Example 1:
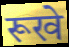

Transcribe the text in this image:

रूखे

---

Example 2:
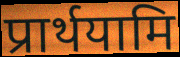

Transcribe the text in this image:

प्रार्थयामि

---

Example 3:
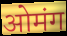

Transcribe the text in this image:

ओमंग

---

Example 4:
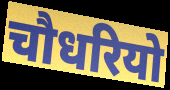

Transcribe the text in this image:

चौधरियो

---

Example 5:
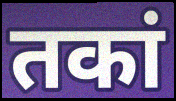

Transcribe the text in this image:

तकां